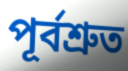
পূর্বশ্রুত